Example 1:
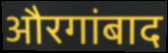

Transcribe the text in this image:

औरगांबाद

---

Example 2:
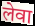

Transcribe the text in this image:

लेवा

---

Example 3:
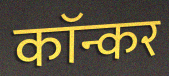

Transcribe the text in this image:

कॉन्कर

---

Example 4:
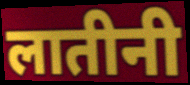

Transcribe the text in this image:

लातीनी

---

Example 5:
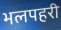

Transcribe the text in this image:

भलपहरी